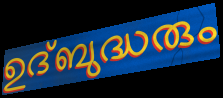
ഉദ്ബുദ്ധരും